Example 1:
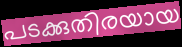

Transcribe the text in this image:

പടക്കുതിരയായ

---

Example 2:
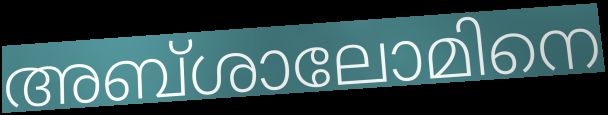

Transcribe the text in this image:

അബ്ശാലോമിനെ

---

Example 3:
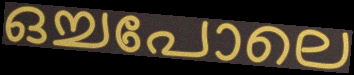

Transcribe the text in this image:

ഒച്ചപോലെ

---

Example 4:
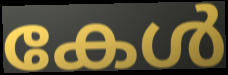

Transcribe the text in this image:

കേൾ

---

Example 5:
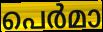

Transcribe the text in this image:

പെർമാ